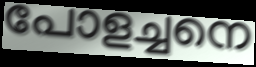
പോളച്ചനെ